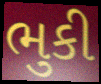
ભુકી